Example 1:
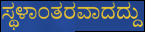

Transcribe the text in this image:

ಸ್ಥಳಾಂತರವಾದದ್ದು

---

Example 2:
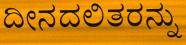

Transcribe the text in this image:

ದೀನದಲಿತರನ್ನು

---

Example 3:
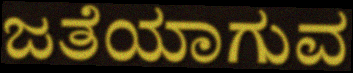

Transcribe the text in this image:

ಜತೆಯಾಗುವ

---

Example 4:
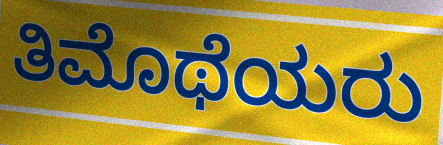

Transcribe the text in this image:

ತಿಮೊಥೆಯರು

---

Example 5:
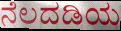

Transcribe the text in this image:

ನೆಲದಡಿಯ